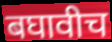
बघावीच